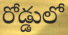
రోడ్డులో